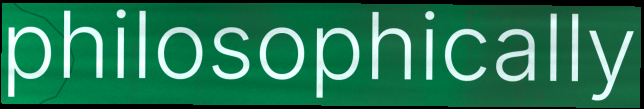
philosophically